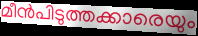
മീൻപിടുത്തക്കാരെയും